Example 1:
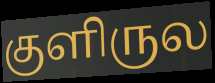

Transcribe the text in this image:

குளிருல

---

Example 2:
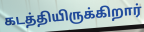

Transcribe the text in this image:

கடத்தியிருக்கிறார்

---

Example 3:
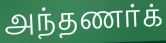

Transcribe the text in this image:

அந்தணர்க்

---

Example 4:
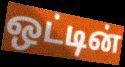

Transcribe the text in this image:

ஒட்டின்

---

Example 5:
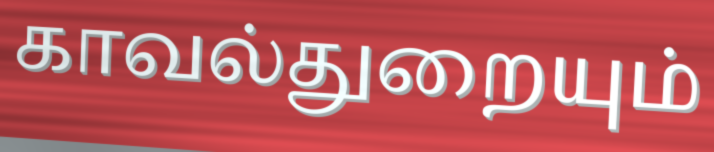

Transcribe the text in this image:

காவல்துறையும்